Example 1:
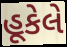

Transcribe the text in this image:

હૂકેલે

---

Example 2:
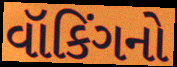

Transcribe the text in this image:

વૉકિંગનો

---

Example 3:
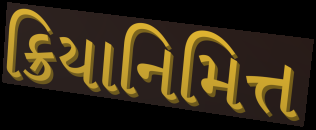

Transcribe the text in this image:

ક્રિયાનિમિત્ત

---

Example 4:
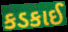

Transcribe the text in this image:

કડકાઈ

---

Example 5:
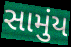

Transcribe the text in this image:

સામુંય